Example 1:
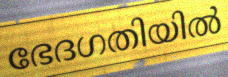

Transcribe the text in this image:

ഭേദഗതിയിൽ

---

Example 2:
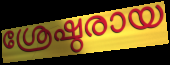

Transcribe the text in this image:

ശ്രേഷ്ഠരായ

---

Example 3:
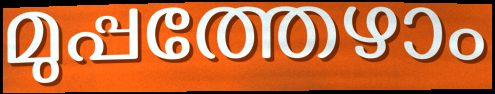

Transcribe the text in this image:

മുപ്പത്തേഴാം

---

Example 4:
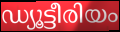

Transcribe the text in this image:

ഡ്യൂട്ടീരിയം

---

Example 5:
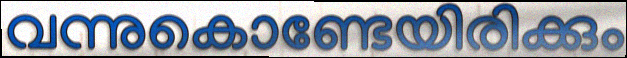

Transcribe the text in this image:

വന്നുകൊണ്ടേയിരിക്കും